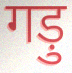
गड़ु